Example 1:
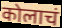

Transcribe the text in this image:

कोलाचं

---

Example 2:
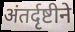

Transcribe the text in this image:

अंतर्दृष्टीने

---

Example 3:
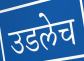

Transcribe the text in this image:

उडलेच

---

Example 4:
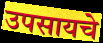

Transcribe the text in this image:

उपसायचे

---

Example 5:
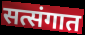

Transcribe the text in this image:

सत्संगात